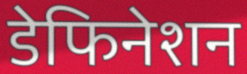
डेफिनेशन